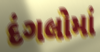
દંગલોમાં